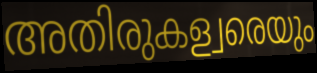
അതിരുകള്വരെയും